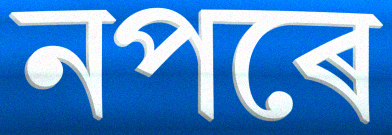
নপৰে